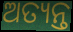
ଅତ୍ୟନ୍ତ